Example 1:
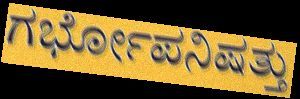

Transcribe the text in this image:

ಗರ್ಭೋಪನಿಷತ್ತು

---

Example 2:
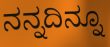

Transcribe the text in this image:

ನನ್ನದಿನ್ನೂ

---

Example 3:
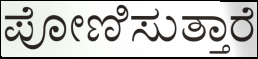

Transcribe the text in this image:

ಪೋಣಿಸುತ್ತಾರೆ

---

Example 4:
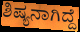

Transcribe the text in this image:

ಶಿಷ್ಯನಾಗಿದ್ದೆ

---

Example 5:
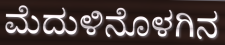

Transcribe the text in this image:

ಮೆದುಳಿನೊಳಗಿನ